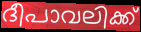
ദീപാവലിക്ക്